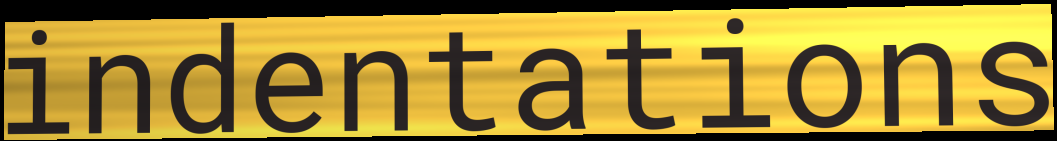
indentations